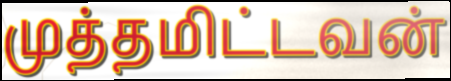
முத்தமிட்டவன்